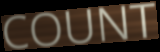
COUNT